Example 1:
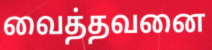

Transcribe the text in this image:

வைத்தவனை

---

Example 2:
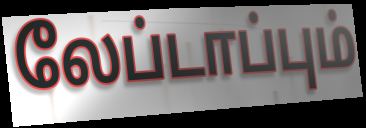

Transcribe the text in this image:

லேப்டாப்பும்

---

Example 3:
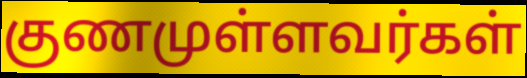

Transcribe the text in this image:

குணமுள்ளவர்கள்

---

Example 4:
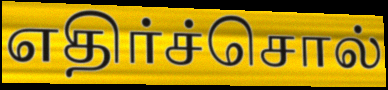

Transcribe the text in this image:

எதிர்ச்சொல்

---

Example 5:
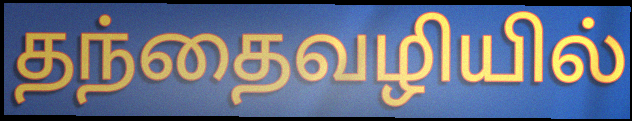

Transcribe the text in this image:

தந்தைவழியில்